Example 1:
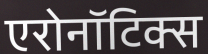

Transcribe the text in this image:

एरोनॉटिक्स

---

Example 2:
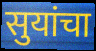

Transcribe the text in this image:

सुयांचा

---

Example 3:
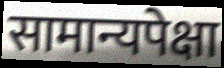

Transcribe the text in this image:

सामान्यपेक्षा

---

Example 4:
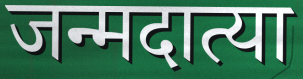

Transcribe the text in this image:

जन्मदात्या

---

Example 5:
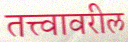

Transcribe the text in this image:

तत्त्वावरील